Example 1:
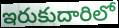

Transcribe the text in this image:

ఇరుకుదారిలో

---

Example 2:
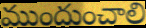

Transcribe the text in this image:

ముందుంచాలి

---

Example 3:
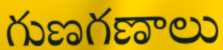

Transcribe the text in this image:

గుణగణాలు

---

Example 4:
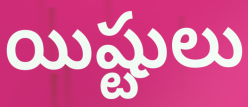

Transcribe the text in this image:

యిష్టులు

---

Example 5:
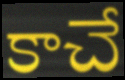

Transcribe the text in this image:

కాచే